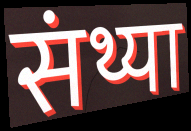
संथ्या